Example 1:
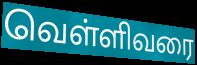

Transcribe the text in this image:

வெள்ளிவரை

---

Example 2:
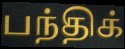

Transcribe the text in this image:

பந்திக்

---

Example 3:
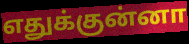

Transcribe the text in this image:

எதுக்குன்னா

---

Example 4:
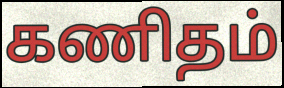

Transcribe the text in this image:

கணிதம்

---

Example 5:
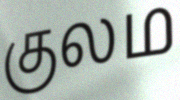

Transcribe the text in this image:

குலம